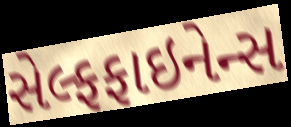
સેલ્ફફાઇનેન્સ